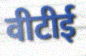
वीटीई